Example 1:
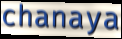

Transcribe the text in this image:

chanaya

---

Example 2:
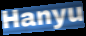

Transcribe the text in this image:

Hanyu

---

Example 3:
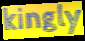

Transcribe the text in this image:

kingly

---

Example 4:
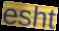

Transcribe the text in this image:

esht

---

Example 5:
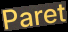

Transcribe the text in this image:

Paret